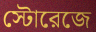
স্টোরেজে